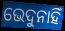
ଭେଦୁନାହିଁ